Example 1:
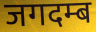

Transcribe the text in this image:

जगदम्ब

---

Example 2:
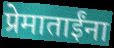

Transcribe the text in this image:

प्रेमाताईंना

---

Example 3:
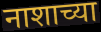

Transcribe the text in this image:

नाशाच्या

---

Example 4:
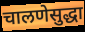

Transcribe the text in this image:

चालणेसुद्धा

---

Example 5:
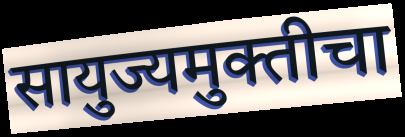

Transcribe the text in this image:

सायुज्यमुक्तीचा